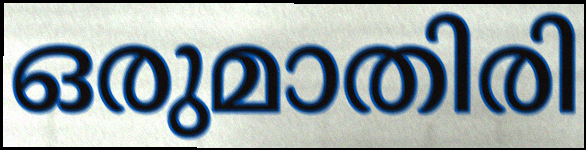
ഒരുമാതിരി